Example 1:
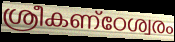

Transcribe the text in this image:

ശ്രീകണ്‌ഠേശ്വരം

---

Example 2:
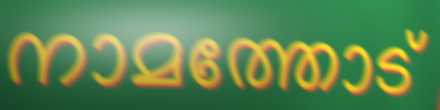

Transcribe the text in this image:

നാമത്തോട്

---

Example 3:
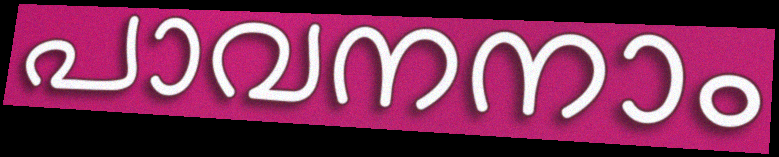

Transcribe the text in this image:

പാവനനാം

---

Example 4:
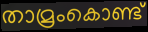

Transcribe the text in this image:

താമ്രംകൊണ്ട്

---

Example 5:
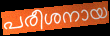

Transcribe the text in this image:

പരീശനായ